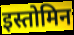
इस्तोमिन